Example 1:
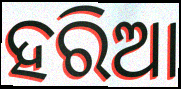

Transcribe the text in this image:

ହରିଆ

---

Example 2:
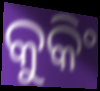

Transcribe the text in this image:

କୁକିଂ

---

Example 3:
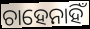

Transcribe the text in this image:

ଚାହେନାହିଁ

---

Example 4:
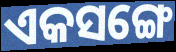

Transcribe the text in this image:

ଏକସଙ୍ଗେ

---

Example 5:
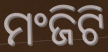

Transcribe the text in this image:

ମଂଜିଟି